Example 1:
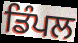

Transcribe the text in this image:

ਡਿੰਪਲ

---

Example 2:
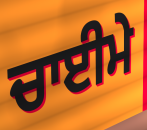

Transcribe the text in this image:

ਚਾਈਮੇ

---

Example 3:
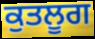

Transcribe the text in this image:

ਕੁਤਲੂਗ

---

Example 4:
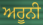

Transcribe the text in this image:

ਅਰੂਨੀ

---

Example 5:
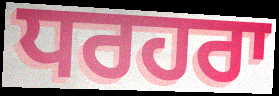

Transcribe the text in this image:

ਧਰਹਰਾ